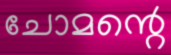
ചോമന്റെ